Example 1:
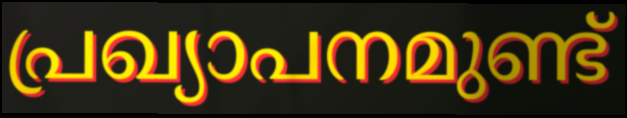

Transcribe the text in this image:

പ്രഖ്യാപനമുണ്ട്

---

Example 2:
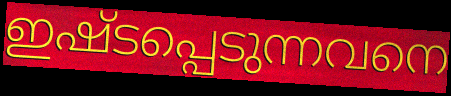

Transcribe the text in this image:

ഇഷ്ടപ്പെടുന്നവനെ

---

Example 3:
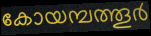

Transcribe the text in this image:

കോയമ്പത്തൂർ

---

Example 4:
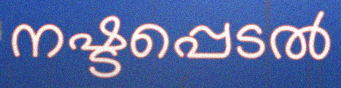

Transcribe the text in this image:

നഷ്ടപ്പെടൽ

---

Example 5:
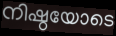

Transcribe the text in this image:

നിഷ്ഠയോടെ